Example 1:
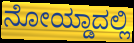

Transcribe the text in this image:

ನೋಯ್ಡಾದಲ್ಲಿ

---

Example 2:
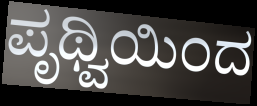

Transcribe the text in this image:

ಪೃಥ್ವಿಯಿಂದ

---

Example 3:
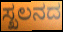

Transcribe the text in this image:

ಸ್ಖಲನದ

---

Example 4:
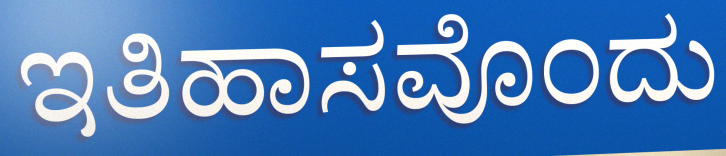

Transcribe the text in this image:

ಇತಿಹಾಸವೊಂದು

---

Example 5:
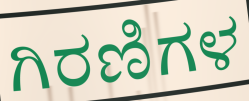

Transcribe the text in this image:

ಗಿರಣಿಗಳ